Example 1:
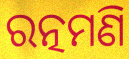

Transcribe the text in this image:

ରତ୍ନମଣି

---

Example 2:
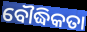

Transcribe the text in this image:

ବୌଦ୍ଧିକତା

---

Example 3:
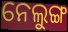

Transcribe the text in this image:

ନେଲୁଙ୍ଗ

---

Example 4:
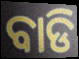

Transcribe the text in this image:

ବାଡି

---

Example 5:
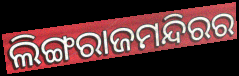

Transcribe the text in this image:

ଲିଙ୍ଗରାଜମନ୍ଦିରର